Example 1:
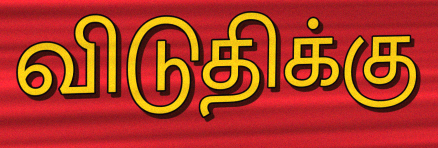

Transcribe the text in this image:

விடுதிக்கு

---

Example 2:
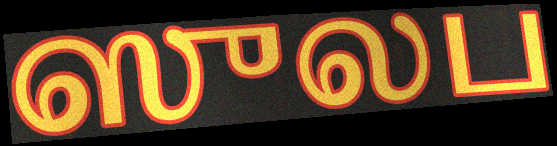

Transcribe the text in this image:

ஸுலப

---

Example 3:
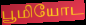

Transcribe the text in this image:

பூமியோட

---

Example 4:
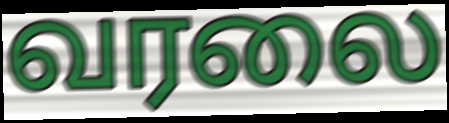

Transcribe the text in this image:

வரலை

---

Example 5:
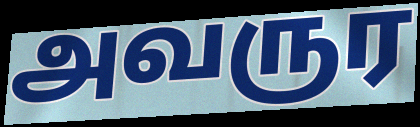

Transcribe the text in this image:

அவருர